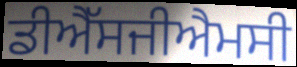
ਡੀਐੱਸਜੀਐਮਸੀ